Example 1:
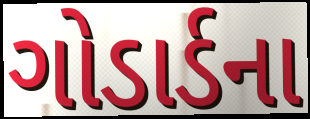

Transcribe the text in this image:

ગોડાર્ડના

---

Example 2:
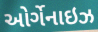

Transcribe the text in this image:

ઓર્ગેનાઇઝ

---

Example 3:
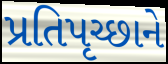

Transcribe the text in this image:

પ્રતિપૃચ્છાને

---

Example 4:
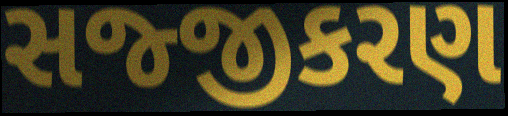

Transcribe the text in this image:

સજ્જીકરણ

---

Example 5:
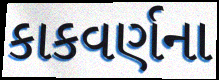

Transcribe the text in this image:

કાકવર્ણના